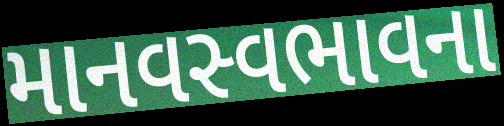
માનવસ્વભાવના